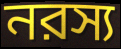
নরস্য